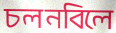
চলনবিলে